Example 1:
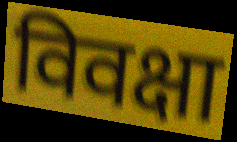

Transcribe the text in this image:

विवक्षा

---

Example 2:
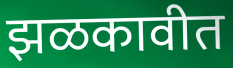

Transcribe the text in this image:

झळकावीत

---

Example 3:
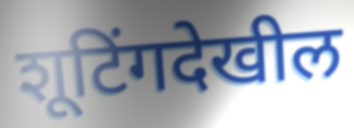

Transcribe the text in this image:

शूटिंगदेखील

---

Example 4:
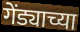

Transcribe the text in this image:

गेंड्याच्या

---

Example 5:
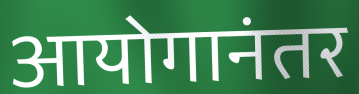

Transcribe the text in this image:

आयोगानंतर